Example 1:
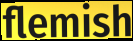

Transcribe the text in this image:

flemish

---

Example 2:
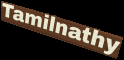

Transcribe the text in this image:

Tamilnathy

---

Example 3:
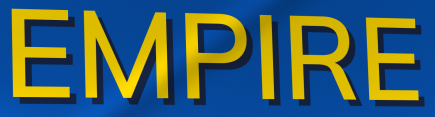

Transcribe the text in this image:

EMPIRE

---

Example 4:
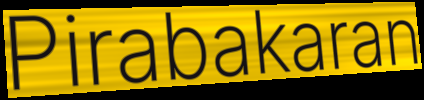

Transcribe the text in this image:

Pirabakaran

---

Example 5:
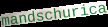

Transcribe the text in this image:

mandschurica